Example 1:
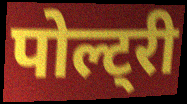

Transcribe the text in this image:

पोल्ट्री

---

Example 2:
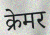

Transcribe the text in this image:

क्रेमर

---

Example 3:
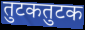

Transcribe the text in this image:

तुटकतुटक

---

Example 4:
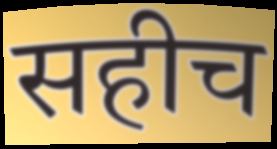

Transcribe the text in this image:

सहीच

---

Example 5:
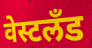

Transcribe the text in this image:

वेस्टलँड